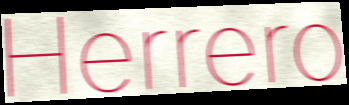
Herrero